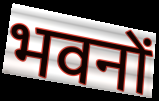
भवनों